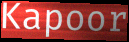
Kapoor